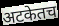
अटकेतच